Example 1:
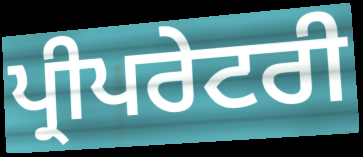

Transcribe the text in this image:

ਪ੍ਰੀਪਰੇਟਰੀ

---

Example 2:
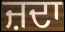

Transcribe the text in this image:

ਜ਼ਦਾ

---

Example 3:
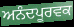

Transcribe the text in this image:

ਅਨੰਦਪੂਰਵਕ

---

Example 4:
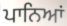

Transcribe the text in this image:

ਪਾਨਿਆਂ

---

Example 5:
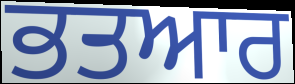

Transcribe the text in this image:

ਭਤਆਰ